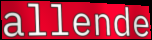
allende